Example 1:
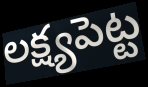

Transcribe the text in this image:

లక్ష్యపెట్ట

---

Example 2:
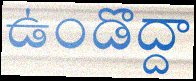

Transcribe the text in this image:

ఉండొద్దా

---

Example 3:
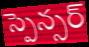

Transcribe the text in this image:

స్పెన్సర్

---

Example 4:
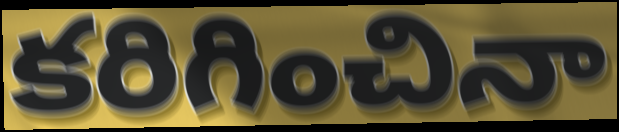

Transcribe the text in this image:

కరిగించినా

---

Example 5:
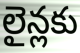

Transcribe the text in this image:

లైన్లకు